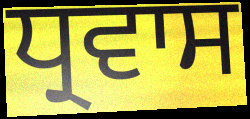
ਧ੍ਰਵਾਸ